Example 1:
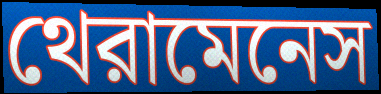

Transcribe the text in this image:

থেরামেনেস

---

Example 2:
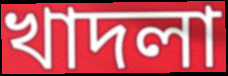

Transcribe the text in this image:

খাদলা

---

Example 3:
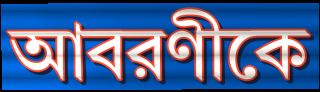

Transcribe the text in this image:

আবরণীকে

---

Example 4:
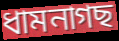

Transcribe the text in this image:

ধামনাগছ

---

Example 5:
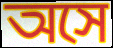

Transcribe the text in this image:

অসে